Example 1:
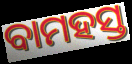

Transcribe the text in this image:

ବାମହସ୍ତ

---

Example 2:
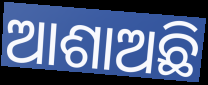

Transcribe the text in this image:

ଆଶାଅଛି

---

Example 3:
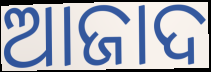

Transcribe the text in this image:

ଆଜାଦ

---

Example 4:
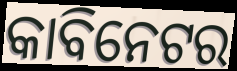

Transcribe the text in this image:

କାବିନେଟର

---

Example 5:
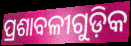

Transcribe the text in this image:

ପ୍ରଶାବଳୀଗୁଡ଼ିକ